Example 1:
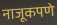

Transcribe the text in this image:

नाजूकपणे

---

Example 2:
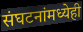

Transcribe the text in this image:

संघटनांमध्येही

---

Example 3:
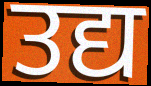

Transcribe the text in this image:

उद्य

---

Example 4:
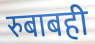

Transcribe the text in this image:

रुबाबही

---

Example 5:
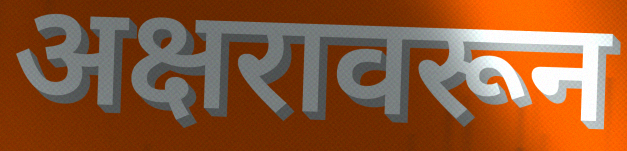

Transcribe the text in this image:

अक्षरावरून